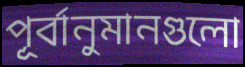
পূর্বানুমানগুলো